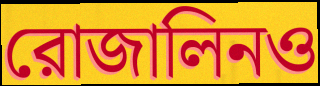
রোজালিনও